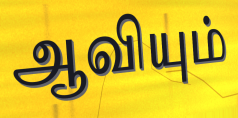
ஆவியும்